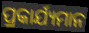
ପ୍ରକାର୍ଯ୍ୟମାନ